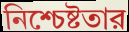
নিশ্চেষ্টতার